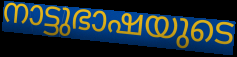
നാട്ടുഭാഷയുടെ